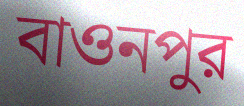
বাওনপুর